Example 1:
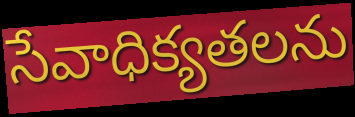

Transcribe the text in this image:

సేవాధిక్యతలను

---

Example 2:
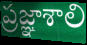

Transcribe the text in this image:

ప్రజ్ఞాశాలి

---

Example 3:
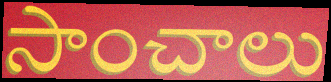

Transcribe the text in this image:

సాంచాలు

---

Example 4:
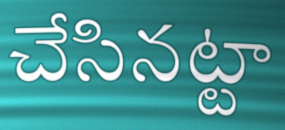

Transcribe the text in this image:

చేసినట్టా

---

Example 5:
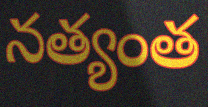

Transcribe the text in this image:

నత్యంత